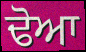
ਢੋਆ